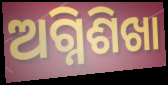
ଅଗ୍ନିଶିଖା